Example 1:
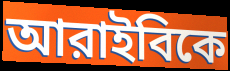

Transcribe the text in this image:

আরাইবিকে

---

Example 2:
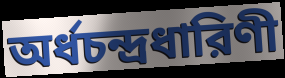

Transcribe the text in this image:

অর্ধচন্দ্রধারিণী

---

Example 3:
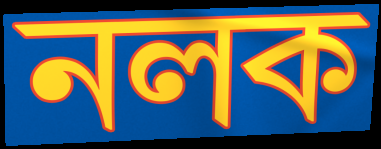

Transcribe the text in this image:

নলক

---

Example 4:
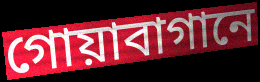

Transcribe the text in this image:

গোয়াবাগানে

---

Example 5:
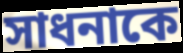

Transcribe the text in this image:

সাধনাকে